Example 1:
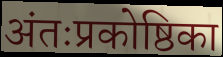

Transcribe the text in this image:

अंतःप्रकोष्ठिका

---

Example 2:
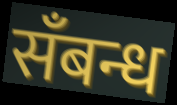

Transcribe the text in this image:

सँबन्ध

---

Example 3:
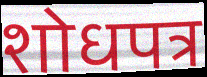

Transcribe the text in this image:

शोधपत्र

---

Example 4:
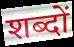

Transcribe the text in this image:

शब्‍दों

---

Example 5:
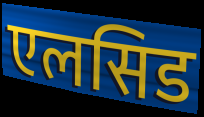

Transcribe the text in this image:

एलसिड